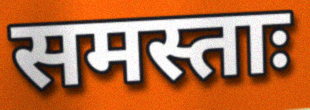
समस्ताः